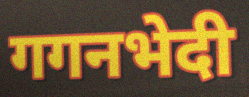
गगनभेदी